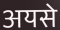
अयसे